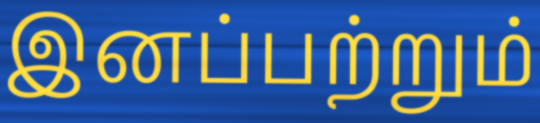
இனப்பற்றும்